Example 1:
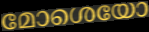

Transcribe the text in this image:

മോശെയോ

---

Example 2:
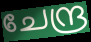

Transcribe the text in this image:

ചേന്ദ്ര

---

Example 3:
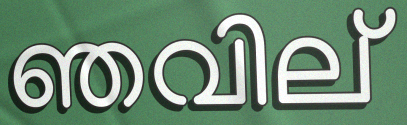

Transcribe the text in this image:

ഞവില്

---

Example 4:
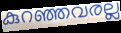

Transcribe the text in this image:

കുറഞ്ഞവരല്ല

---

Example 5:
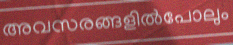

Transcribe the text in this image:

അവസരങ്ങളിൽപോലും